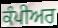
ਕੰਪੀਅਰ